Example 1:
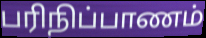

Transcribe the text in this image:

பரிநிப்பாணம்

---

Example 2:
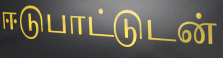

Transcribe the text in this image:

ஈடுபாட்டுடன்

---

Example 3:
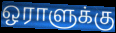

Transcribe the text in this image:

ஒராளுக்கு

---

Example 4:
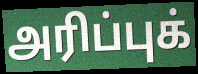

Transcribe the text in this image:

அரிப்புக்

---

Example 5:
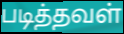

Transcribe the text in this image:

படித்தவள்